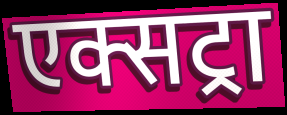
एक्सट्रा